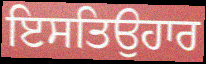
ਇਸਤਿਉਹਾਰ